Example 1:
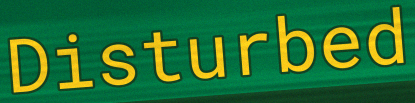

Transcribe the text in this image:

Disturbed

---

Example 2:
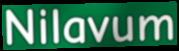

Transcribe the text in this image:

Nilavum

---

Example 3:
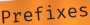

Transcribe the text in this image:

Prefixes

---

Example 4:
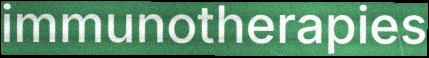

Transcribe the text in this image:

immunotherapies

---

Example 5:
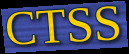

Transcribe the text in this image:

CTSS